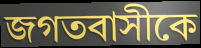
জগতবাসীকে